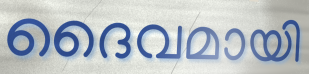
ദൈവമായി